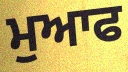
ਮੁਆਫ